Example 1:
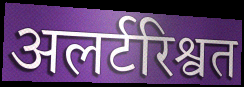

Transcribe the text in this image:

अलर्टरिश्वत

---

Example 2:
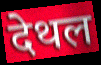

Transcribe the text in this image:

देथल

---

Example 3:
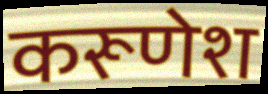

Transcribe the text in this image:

करूणेश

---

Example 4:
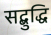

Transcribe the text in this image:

सद्बुद्धि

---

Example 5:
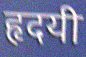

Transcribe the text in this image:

हृदयी